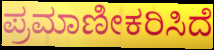
ಪ್ರಮಾಣೀಕರಿಸಿದೆ